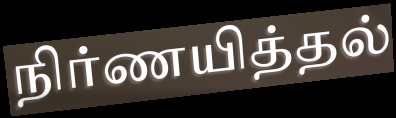
நிர்ணயித்தல்